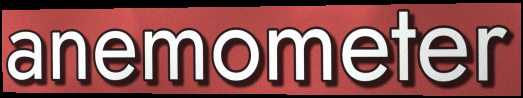
anemometer